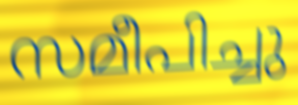
സമീപിച്ചു